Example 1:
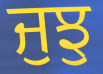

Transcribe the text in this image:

ਜੁਝੁ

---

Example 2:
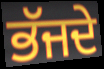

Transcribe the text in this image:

ਭੱਜਦੇ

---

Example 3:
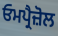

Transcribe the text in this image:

ਓਮਪ੍ਰੈਜ਼ੋਲ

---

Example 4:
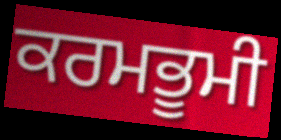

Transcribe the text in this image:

ਕਰਮਭੂਮੀ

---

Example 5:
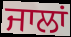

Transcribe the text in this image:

ਜਾਲਾਂ